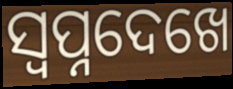
ସ୍ୱପ୍ନଦେଖେ